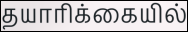
தயாரிக்கையில்